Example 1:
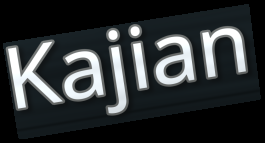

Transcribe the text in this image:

Kajian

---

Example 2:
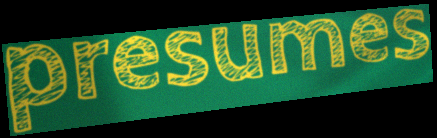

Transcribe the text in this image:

presumes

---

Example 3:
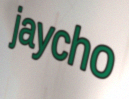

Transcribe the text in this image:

jaycho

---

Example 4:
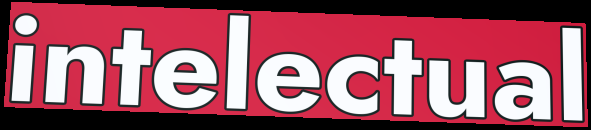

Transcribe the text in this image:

intelectual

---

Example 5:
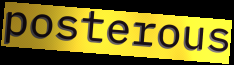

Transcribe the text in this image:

posterous